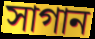
সাগান